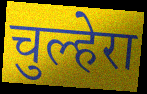
चुल्हेरा